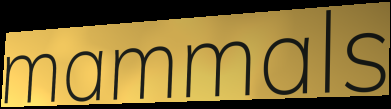
mammals